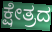
ಕ್ಷೇತ್ರದ